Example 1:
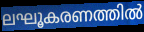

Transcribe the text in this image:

ലഘൂകരണത്തിൽ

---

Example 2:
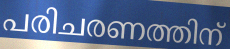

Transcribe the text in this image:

പരിചരണത്തിന്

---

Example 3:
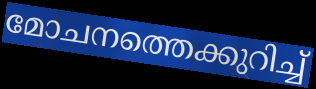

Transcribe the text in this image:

മോചനത്തെക്കുറിച്ച്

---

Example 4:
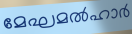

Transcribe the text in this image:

മേഘമൽഹാർ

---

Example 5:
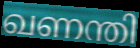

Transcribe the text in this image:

ഖണന്തി